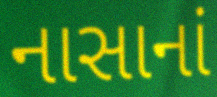
નાસાનાં